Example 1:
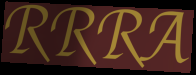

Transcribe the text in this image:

RRRA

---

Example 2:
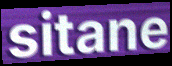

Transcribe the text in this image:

sitane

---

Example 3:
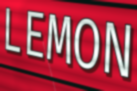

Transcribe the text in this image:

LEMON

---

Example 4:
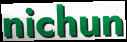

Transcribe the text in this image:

nichun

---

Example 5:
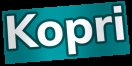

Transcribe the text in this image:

Kopri